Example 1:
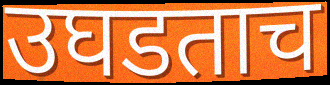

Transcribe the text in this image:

उघडताच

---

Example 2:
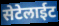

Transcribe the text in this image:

सेटेलाईट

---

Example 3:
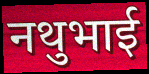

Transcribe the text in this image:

नथुभाई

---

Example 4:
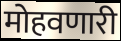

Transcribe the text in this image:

मोहवणारी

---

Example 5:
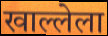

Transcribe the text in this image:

खाल्लेला